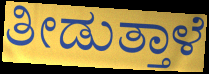
ತೀಡುತ್ತಾಳೆ